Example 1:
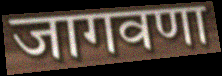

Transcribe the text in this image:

जागवणा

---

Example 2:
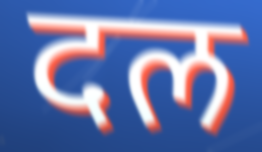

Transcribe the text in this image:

दल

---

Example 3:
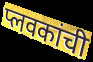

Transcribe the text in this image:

प्लवकांची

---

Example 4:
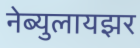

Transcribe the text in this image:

नेब्युलायझर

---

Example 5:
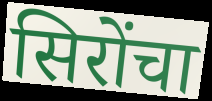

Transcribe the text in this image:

सिरोंचा